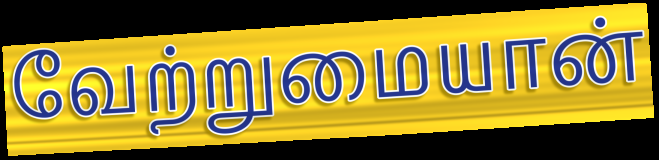
வேற்றுமையான்